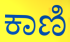
ಕಾಣಿ